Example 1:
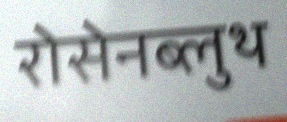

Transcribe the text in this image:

रोसेनब्लुथ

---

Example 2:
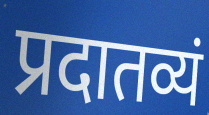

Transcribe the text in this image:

प्रदातव्यं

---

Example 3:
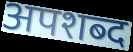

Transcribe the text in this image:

अपशब्‍द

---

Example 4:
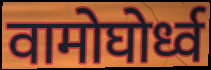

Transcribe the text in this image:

वामोघोर्ध्व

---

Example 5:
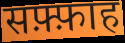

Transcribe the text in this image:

सफ़्फ़ाह